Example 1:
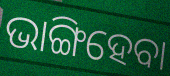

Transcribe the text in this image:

ଭାଙ୍ଗିହେବା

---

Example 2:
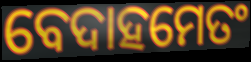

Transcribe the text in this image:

ବେଦାହମେତଂ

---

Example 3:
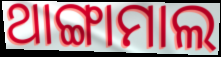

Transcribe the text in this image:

ଥାଙ୍ଗାମାଲ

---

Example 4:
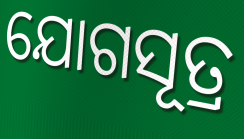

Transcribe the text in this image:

ଯୋଗସୂତ୍ର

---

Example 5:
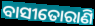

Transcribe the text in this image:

ବାସୀତୋରାଣି